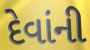
દેવાંની